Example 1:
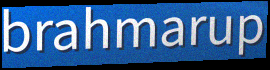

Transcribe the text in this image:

brahmarup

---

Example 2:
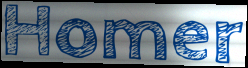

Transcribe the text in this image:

Homer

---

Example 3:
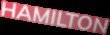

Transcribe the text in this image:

HAMILTON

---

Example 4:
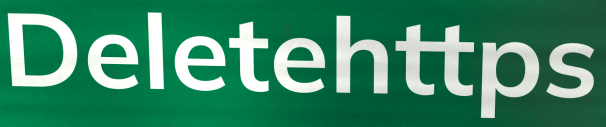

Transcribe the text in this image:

Deletehttps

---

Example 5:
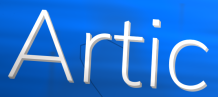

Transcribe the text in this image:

Artic